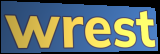
wrest